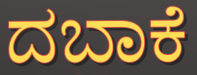
ದಬಾಕೆ